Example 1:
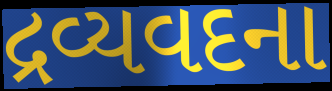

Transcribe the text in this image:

દ્રવ્યવદના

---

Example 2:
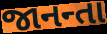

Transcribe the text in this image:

જાનન્તા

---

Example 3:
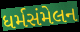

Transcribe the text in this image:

ધર્મસંમેલન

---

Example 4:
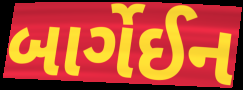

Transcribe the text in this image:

બાર્ગેઈન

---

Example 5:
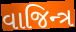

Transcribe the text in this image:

વાજિન્ત્ર